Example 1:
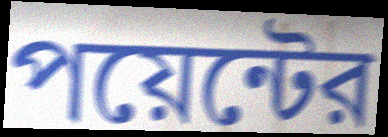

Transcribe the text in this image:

পয়েন্টের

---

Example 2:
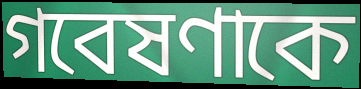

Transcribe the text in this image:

গবেষণাকে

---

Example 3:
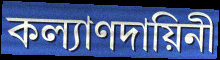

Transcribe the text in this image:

কল্যাণদায়িনী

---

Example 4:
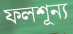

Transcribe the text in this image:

ফলশূন্য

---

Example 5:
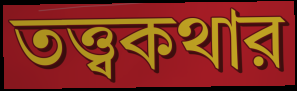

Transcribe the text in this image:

তত্ত্বকথার